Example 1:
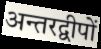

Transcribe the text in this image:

अन्तरद्वीपों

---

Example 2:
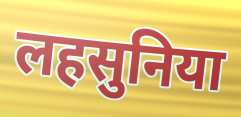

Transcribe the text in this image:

लहसुनिया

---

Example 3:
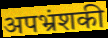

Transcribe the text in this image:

अपभ्रंशकी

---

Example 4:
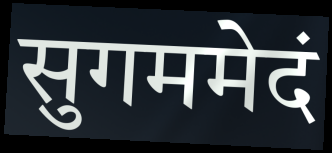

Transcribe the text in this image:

सुगममेदं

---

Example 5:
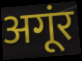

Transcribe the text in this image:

अगूंर